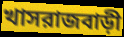
খাসরাজবাড়ী